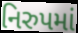
નિરુપમાં